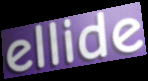
ellide